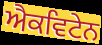
ਐਕਵਿਟੇਨ